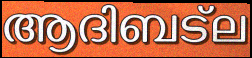
ആദിബട്ല